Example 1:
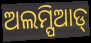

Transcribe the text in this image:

ଅଲମ୍ପିଆଡ୍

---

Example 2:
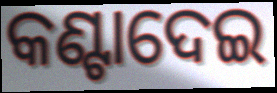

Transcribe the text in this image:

କଣ୍ଟାଦେଇ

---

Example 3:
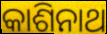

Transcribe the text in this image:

କାଶିନାଥ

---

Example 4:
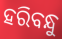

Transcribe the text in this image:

ହରିବନ୍ଧୁ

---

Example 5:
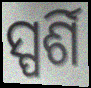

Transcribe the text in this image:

ସ୍ପର୍ଶି